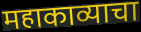
महाकाव्याचा